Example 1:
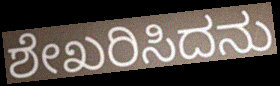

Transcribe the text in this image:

ಶೇಖರಿಸಿದನು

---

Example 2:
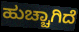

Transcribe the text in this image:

ಹುಚ್ಚಾಗಿದೆ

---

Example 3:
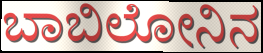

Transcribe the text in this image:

ಬಾಬಿಲೋನಿನ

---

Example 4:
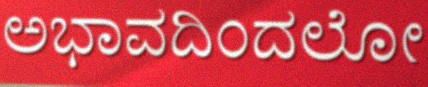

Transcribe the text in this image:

ಅಭಾವದಿಂದಲೋ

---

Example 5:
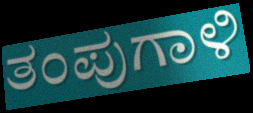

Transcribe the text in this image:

ತಂಪುಗಾಳಿ